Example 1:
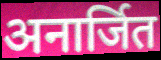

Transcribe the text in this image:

अनार्जित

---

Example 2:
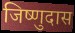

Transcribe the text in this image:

जिष्णुदास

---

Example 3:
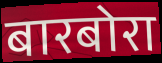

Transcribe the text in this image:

बारबोरा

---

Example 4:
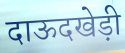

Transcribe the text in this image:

दाऊदखेड़ी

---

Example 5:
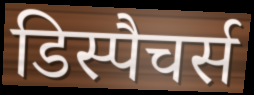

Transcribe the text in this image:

डिस्पैचर्स